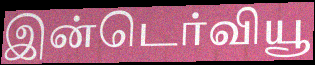
இன்டெர்வியூ